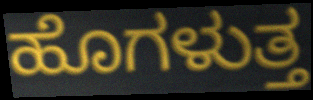
ಹೊಗಳುತ್ತ